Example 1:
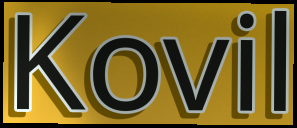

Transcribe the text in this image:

Kovil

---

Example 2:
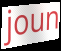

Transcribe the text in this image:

joun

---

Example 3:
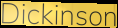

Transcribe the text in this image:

Dickinson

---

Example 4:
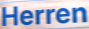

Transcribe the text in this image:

Herren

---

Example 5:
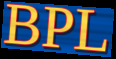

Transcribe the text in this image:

BPL